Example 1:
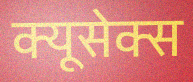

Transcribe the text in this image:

क्यूसेक्स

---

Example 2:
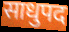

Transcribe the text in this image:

साधुपद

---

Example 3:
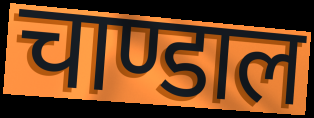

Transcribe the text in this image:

चाण्डाल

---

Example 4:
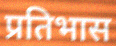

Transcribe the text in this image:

प्रतिभास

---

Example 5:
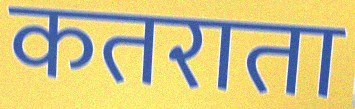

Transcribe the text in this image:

कतराता